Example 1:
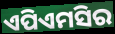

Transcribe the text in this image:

ଏପିଏମସିର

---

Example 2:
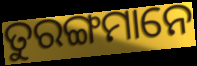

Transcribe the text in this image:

ତୁରଙ୍ଗମାନେ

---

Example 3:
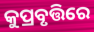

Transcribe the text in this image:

କୁପ୍ରବୃତ୍ତିରେ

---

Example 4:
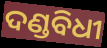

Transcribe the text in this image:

ଦଣ୍ଡବିଧୀ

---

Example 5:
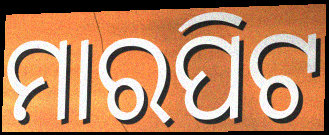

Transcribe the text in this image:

ମାରପିଟ